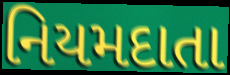
નિયમદાતા